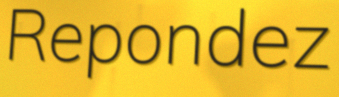
Repondez